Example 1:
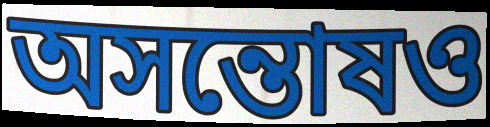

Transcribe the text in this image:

অসন্তোষও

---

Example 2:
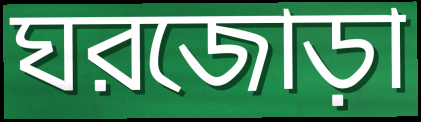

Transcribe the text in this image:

ঘরজোড়া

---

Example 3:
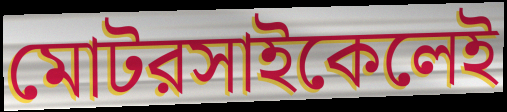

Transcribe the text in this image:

মোটরসাইকেলেই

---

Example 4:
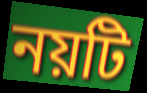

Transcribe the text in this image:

নয়টি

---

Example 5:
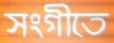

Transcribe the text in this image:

সংগীতে